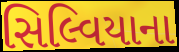
સિલ્વિયાના